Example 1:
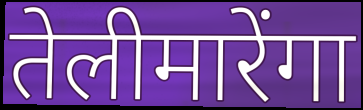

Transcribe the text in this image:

तेलीमारेंगा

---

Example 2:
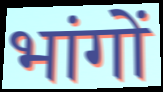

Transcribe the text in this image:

भांगों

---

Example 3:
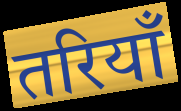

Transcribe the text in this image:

तरियाँ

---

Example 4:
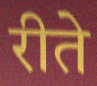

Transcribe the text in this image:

रीते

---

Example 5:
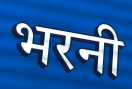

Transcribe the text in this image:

भरनी